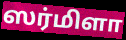
ஸர்மிளா